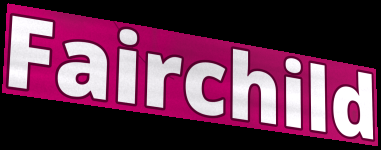
Fairchild